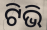
ଟିଭି